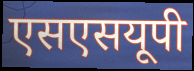
एसएसयूपी